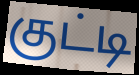
குட்டி